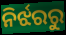
ନିର୍ଝରରୁ